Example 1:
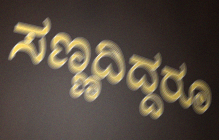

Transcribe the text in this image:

ಸಣ್ಣದಿದ್ದರೂ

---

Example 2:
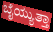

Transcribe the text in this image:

ಬೈಯ್ಯುತ್ತಾ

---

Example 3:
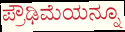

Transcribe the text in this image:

ಪ್ರೌಢಿಮೆಯನ್ನೂ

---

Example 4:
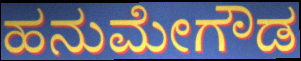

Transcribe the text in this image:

ಹನುಮೇಗೌಡ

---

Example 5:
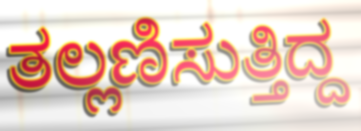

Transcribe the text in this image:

ತಲ್ಲಣಿಸುತ್ತಿದ್ದ